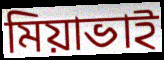
মিয়াভাই